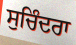
ਸੁਚਿੰਦਰਾ